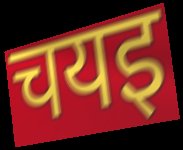
चयइ